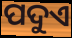
ପଦୁଏ